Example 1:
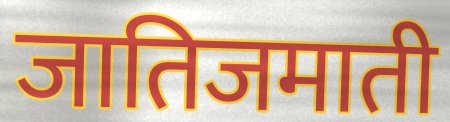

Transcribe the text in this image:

जातिजमाती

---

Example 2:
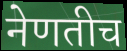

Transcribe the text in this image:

नेणतीच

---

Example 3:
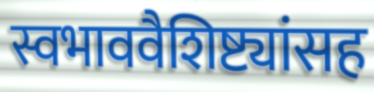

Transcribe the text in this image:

स्वभाववैशिष्ट्यांसह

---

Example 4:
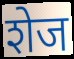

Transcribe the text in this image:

शेज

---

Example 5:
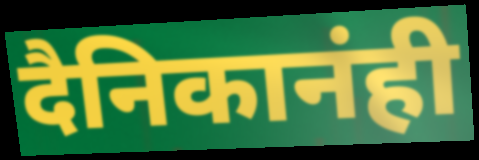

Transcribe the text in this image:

दैनिकानंही